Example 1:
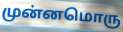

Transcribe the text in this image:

முன்னமொரு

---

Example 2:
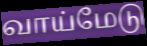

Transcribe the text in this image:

வாய்மேடு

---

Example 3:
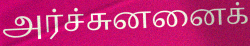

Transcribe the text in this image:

அர்ச்சுனனைக்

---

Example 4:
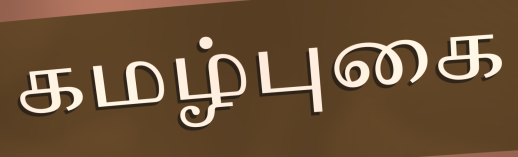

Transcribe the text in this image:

கமழ்புகை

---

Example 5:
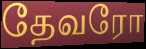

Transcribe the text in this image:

தேவரோ